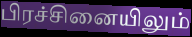
பிரச்சினையிலும்